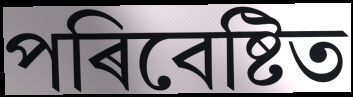
পৰিবেষ্টিত